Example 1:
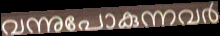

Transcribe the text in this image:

വന്നുപോകുന്നവർ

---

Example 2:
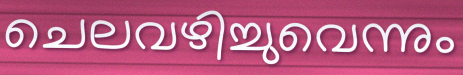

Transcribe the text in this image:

ചെലവഴിച്ചുവെന്നും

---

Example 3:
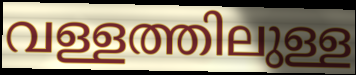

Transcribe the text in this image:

വള്ളത്തിലുള്ള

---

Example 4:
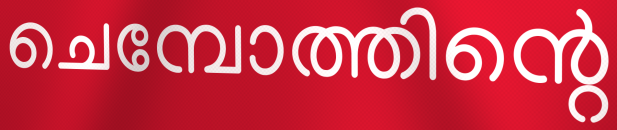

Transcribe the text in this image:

ചെമ്പോത്തിന്റെ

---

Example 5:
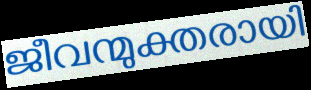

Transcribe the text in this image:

ജീവന്മുക്തരായി